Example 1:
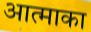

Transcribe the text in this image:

आत्माका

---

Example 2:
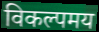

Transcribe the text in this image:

विकल्पमय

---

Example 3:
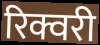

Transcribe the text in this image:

रिक्वरी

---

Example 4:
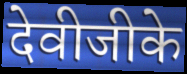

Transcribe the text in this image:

देवीजीके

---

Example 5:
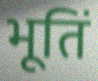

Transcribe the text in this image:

भूतिं